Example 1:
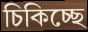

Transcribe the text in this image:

চিকিচ্ছে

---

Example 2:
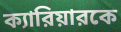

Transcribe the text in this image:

ক্যারিয়ারকে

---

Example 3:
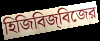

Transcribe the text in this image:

হিজিবিজ্‌বিজের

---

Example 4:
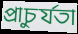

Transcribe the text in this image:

প্রাচুর্যতা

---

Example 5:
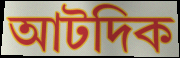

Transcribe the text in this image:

আটদিক